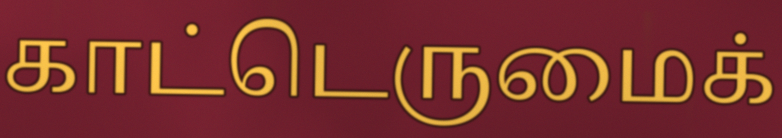
காட்டெருமைக்